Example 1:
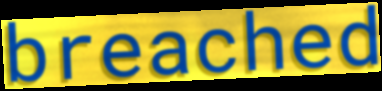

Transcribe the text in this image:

breached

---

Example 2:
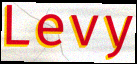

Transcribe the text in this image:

Levy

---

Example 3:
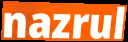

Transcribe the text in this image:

nazrul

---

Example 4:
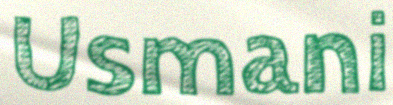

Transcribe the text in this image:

Usmani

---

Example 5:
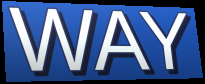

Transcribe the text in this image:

WAY